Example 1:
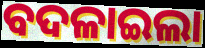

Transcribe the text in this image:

ବଦଳାଇଲା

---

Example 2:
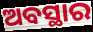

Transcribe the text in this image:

ଅବସ୍ଥାର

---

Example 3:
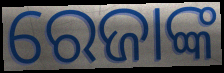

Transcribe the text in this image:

ରେଜାଙ୍କ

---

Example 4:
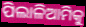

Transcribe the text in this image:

ପିଲାଳିଆମିକୁ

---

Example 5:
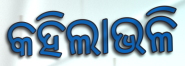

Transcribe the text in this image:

କହିଲାଭଳି